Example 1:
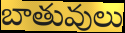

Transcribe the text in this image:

బాతువులు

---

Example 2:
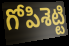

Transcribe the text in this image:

గోపిశెట్టి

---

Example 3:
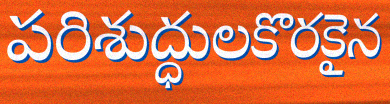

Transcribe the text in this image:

పరిశుద్ధులకొరకైన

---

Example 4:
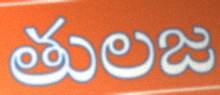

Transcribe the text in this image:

తులజ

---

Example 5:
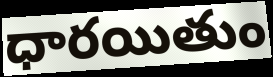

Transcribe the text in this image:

ధారయితుం